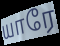
யாரே